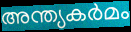
അന്ത്യകർമം